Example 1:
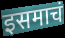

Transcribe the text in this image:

इसमाचं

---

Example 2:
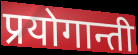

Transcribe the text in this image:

प्रयोगान्ती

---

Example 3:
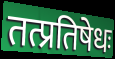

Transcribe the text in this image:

तत्प्रतिषेधः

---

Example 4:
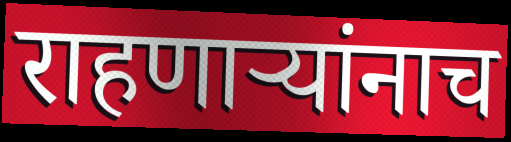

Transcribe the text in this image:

राहणाऱ्यांनाच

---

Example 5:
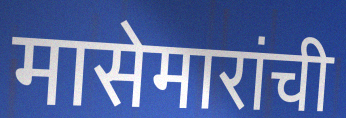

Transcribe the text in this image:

मासेमारांची